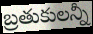
బ్రతుకులన్నీ